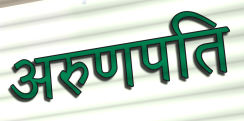
अरुणपति